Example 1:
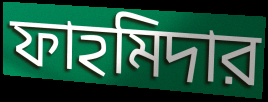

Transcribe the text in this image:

ফাহমিদার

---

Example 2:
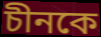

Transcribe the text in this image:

চীনকে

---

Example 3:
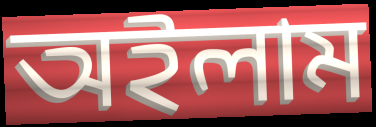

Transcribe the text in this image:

অইলাম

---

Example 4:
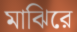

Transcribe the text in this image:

মাঝিরে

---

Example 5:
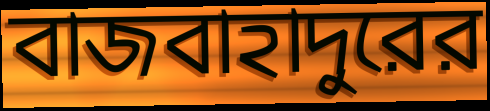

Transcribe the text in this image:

বাজবাহাদুরের